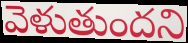
వెళుతుందని